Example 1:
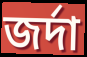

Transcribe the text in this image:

জর্দা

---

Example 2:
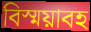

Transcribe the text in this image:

বিস্ময়াবহ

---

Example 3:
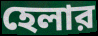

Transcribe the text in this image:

হেলার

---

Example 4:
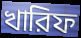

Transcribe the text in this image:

খারিফ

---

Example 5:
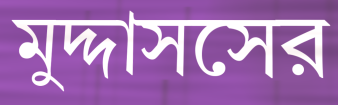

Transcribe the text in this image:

মুদ্দাসসের